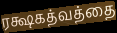
ரக்ஷகத்வத்தை